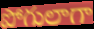
పోగులాగా